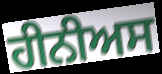
ਹੀਨੀਅਸ